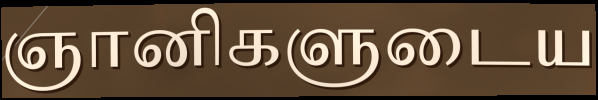
ஞானிகளுடைய